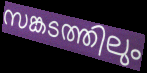
സങ്കടത്തിലും